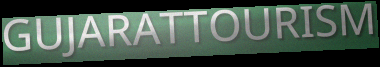
GUJARATTOURISM